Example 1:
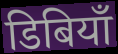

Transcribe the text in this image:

डिबियाँ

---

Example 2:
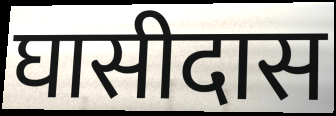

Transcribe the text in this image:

घासीदास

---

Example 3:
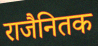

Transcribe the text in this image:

राजैनितक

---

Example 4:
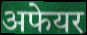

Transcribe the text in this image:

अफेयर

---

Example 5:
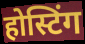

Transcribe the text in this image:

होस्टिंग